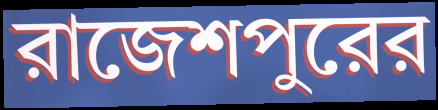
রাজেশপুরের